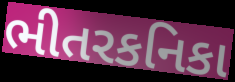
ભીતરકનિકા